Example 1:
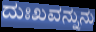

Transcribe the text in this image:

ದುಃಖವನ್ನುನು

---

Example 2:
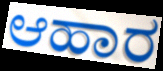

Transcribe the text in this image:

ಆಹಾರ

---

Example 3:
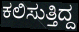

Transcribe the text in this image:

ಕಲಿಸುತ್ತಿದ್ದ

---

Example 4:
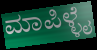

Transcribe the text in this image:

ಮಾಪಿಳ್ಳೈ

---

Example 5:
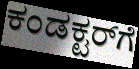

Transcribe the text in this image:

ಕಂಡಕ್ಟರ್‌ಗೆ